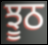
ਝੂਠ